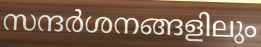
സന്ദർശനങ്ങളിലും